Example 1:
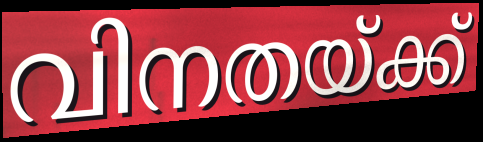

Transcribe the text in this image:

വിനതയ്ക്ക്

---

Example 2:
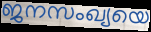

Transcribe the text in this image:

ജനസംഖ്യയെ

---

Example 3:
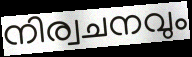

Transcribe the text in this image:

നിര്വചനവും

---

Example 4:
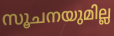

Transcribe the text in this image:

സൂചനയുമില്ല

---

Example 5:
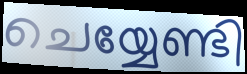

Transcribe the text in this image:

ചെയ്യേണ്ടി